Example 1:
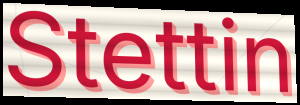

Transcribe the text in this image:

Stettin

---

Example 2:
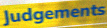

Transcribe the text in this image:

Judgements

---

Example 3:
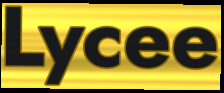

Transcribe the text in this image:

Lycee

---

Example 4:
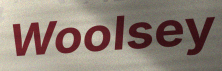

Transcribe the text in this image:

Woolsey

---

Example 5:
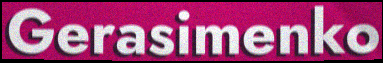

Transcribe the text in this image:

Gerasimenko